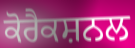
ਕੋਰੈਕਸ਼ਨਲ